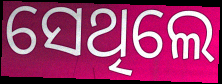
ସେଥିଲେ